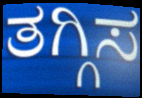
ತಗ್ಗಿಸ